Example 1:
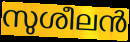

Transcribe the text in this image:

സുശീലൻ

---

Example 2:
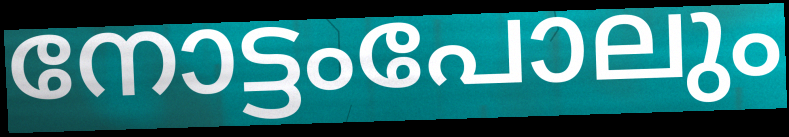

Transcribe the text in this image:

നോട്ടംപോലും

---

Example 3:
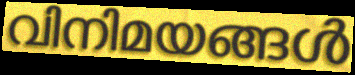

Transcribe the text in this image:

വിനിമയങ്ങൾ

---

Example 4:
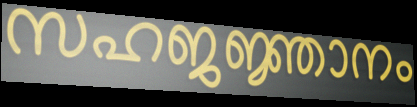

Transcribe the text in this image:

സഹജജ്ഞാനം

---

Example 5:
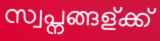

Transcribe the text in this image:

സ്വപ്നങ്ങള്ക്ക്